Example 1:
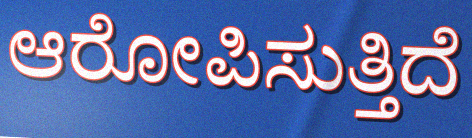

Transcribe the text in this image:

ಆರೋಪಿಸುತ್ತಿದೆ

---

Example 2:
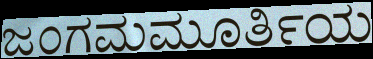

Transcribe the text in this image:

ಜಂಗಮಮೂರ್ತಿಯ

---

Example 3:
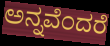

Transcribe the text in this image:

ಅನ್ನವೆಂದರೆ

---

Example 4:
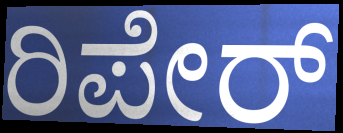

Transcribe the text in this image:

ರಿಪೇರ್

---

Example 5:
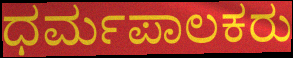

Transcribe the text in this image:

ಧರ್ಮಪಾಲಕರು